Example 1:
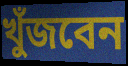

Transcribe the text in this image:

খুঁজবেন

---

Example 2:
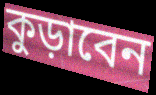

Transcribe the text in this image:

কুড়াবেন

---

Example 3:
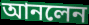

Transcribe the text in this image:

আনলেন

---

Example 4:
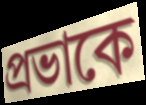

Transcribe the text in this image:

প্রভাকে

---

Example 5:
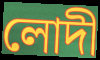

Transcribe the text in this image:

লোদী